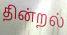
தின்றல்